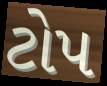
ટોપ